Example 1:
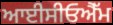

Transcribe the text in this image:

ਆਈਸੀਓਐੱਮ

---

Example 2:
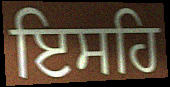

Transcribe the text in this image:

ਇਸਹਿ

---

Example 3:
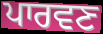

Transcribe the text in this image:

ਪਾਰਵਣ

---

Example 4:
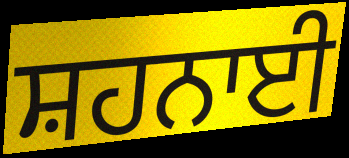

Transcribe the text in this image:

ਸ਼ਹਨਾਈ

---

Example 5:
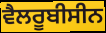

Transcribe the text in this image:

ਵੈਲਰੂਬੀਸੀਨ